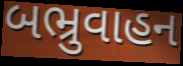
બભ્રુવાહન